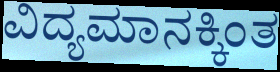
ವಿದ್ಯಮಾನಕ್ಕಿಂತ